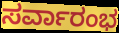
ಸರ್ವಾರಂಭ